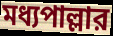
মধ্যপাল্লার